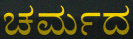
ಚರ್ಮದ